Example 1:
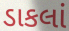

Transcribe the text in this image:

ડાકલાં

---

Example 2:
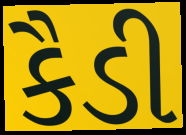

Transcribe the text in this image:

કૈડી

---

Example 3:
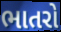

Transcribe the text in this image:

ભાતરો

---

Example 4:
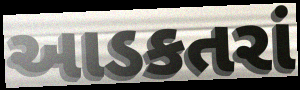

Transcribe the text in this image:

આડકતરાં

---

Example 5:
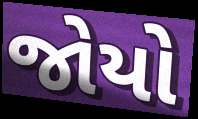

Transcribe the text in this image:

જોયો